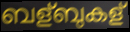
ബള്ബുകള്